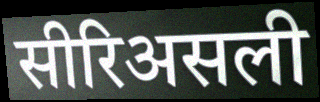
सीरिअसली